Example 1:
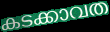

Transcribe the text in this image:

കടക്കാവത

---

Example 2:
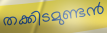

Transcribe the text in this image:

തക്കിടമുണ്ടൻ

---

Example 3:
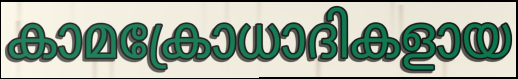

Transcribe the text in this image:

കാമക്രോധാദികളായ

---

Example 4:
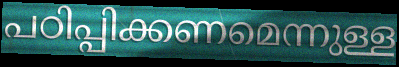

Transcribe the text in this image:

പഠിപ്പിക്കണമെന്നുള്ള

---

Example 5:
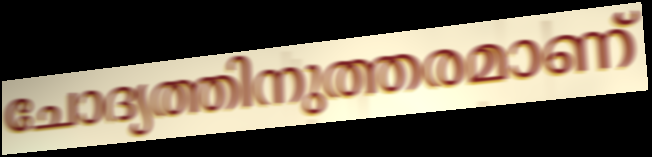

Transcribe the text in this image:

ചോദ്യത്തിനുത്തരമാണ്